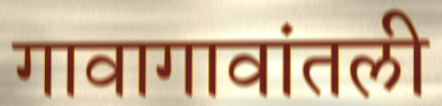
गावागावांतली